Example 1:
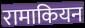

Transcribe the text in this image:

रामाकियन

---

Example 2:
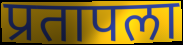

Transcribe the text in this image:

प्रतापला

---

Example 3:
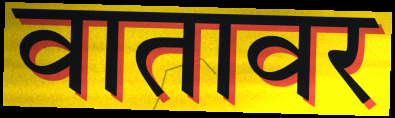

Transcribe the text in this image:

वातावर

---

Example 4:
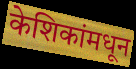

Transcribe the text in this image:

केशिकांमधून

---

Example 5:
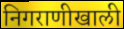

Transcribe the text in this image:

निगराणीखाली